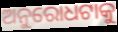
ଅନୁରୋଧଟାକୁ